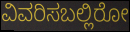
ವಿವರಿಸಬಲ್ಲಿರೋ